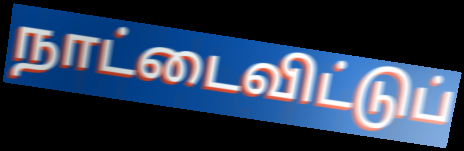
நாட்டைவிட்டுப்